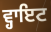
ਵ੍ਹਾਇਟ